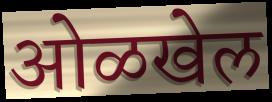
ओळखेल